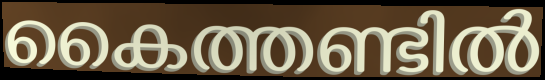
കൈത്തണ്ടിൽ